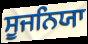
ਸੂਜਨਿਯਾ